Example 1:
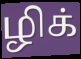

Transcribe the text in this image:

ழிக்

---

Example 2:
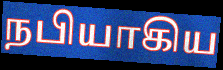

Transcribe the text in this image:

நபியாகிய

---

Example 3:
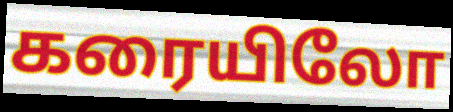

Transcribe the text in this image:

கரையிலோ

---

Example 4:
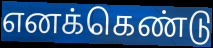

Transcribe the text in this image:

எனக்கெண்டு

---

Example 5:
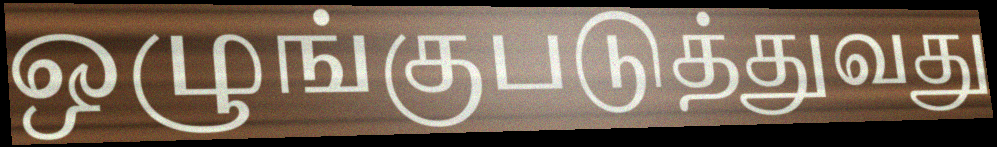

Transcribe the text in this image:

ஒழுங்குபடுத்துவது